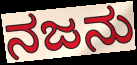
ನಜನು